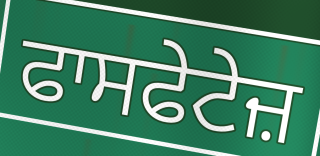
ਫਾਸਫੇਟੇਜ਼